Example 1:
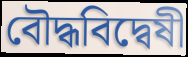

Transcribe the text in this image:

বৌদ্ধবিদ্বেষী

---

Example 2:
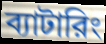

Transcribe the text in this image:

ব্যাটারিং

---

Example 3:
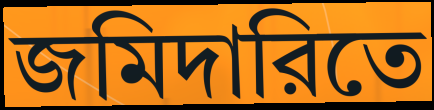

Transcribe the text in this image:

জমিদারিতে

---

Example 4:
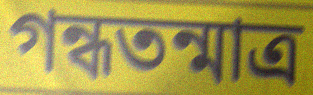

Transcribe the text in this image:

গন্ধতন্মাত্র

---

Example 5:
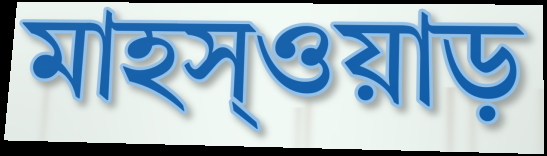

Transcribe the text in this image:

মাহস্ওয়াড়